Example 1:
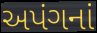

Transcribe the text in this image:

અપંગનાં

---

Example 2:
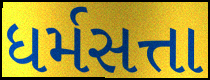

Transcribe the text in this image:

ધર્મસત્તા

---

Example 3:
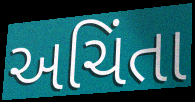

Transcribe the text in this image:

અચિંતા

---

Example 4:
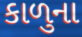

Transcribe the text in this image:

કાળુના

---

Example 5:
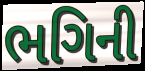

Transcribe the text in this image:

ભગિની